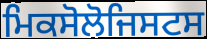
ਮਿਕਸੋਲੋਜਿਸਟਸ